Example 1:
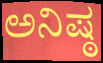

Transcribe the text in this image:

ಅನಿಷ್ಠ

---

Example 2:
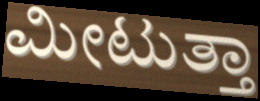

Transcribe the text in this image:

ಮೀಟುತ್ತಾ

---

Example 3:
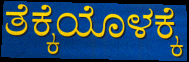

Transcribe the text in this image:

ತೆಕ್ಕೆಯೊಳಕ್ಕೆ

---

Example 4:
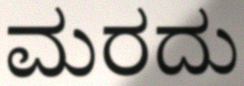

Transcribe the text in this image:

ಮರದು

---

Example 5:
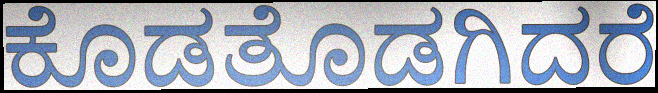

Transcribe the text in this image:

ಕೊಡತೊಡಗಿದರೆ